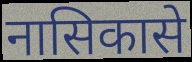
नासिकासे